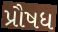
પ્રૌષધ